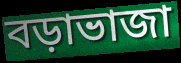
বড়াভাজা